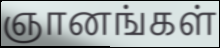
ஞானங்கள்